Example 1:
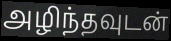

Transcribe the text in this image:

அழிந்தவுடன்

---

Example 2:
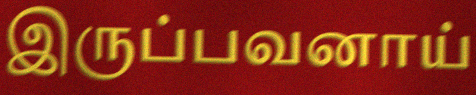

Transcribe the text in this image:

இருப்பவனாய்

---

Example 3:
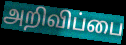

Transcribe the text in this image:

அறிவிப்பை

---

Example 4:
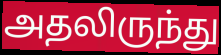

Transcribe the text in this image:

அதலிருந்து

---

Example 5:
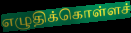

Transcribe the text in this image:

எழுதிக்கொள்ளச்